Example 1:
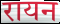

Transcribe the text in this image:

रायन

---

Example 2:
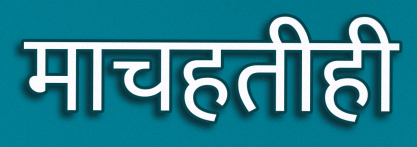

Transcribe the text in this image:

माचहतीही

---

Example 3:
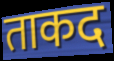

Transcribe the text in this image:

ताकद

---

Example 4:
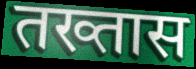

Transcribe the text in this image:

तख्तास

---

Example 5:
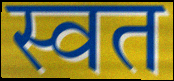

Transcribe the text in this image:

स्वत